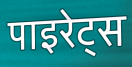
पाइरेट्स